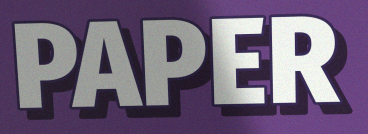
PAPER